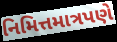
નિમિત્તમાત્રપણે